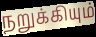
நறுக்கியும்